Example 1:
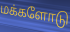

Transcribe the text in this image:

மக்களோடு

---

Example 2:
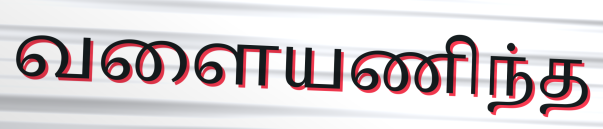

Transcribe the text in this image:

வளையணிந்த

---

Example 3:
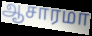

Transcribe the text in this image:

ஆசாரமா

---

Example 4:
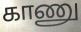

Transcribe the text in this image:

காணு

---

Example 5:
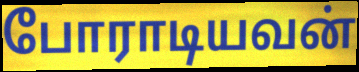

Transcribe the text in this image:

போராடியவன்